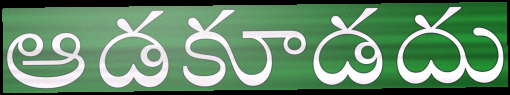
ఆడకూడదు